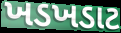
ખડખડાટ